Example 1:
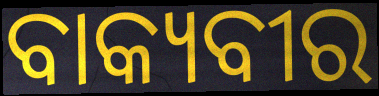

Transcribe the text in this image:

ବାକ୍ୟବୀର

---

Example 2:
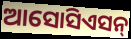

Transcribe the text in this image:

ଆସୋସିଏସନ୍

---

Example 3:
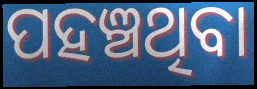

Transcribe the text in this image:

ପହଞ୍ଚଥିବା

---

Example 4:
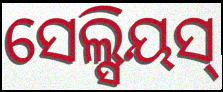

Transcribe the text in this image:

ସେଲ୍ସିୟସ୍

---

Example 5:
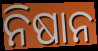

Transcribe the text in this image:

ନିଷାନ